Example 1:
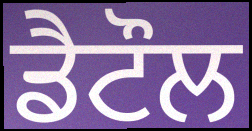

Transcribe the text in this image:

ਡੈਟੌਲ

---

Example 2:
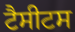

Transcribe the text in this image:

ਟੈਸੀਟਸ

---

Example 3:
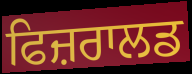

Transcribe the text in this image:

ਫਿਜ਼ਰਾਲਡ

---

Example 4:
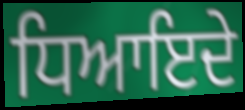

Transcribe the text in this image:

ਧਿਆਇਦੇ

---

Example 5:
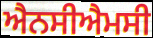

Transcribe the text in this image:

ਐਨਸੀਐਮਸੀ